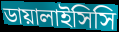
ডায়ালাইসিসি